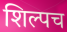
शिल्पच